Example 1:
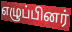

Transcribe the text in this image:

எழுப்பினர்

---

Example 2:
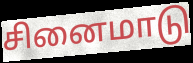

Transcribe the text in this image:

சினைமாடு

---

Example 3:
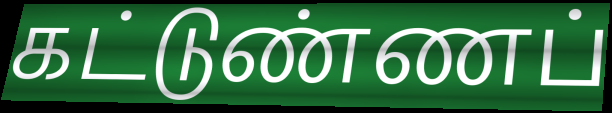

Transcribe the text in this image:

கட்டுண்ணப்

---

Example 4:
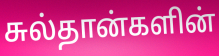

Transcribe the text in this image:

சுல்தான்களின்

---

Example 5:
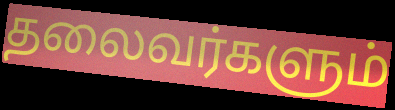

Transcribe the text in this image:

தலைவர்களும்